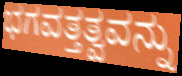
ಭಗವತ್ತತ್ವವನ್ನು